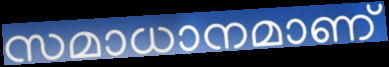
സമാധാനമാണ്